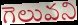
గెలువని